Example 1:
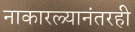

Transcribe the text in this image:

नाकारल्यानंतरही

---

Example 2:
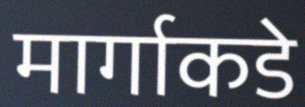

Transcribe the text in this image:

मार्गाकडे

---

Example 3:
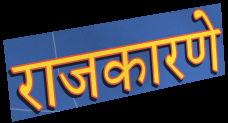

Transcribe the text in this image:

राजकारणे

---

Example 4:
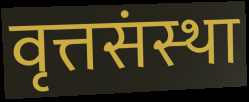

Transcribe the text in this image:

वृत्तसंस्था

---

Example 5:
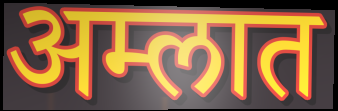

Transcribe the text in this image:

अम्लात